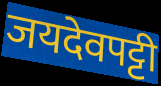
जयदेवपट्टी